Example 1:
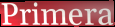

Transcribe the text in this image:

Primera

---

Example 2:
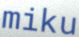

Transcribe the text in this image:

miku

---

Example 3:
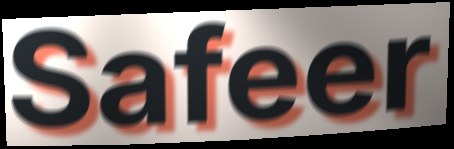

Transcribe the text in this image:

Safeer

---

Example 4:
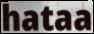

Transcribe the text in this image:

hataa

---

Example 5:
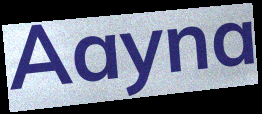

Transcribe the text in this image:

Aayna